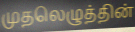
முதலெழுத்தின்